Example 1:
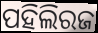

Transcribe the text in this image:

ପହିଲିରଜ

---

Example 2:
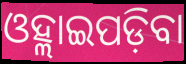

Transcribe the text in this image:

ଓହ୍ଲାଇପଡ଼ିବା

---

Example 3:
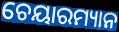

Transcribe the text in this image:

ଚେୟାରମ୍ୟାନ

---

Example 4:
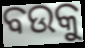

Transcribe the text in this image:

ବଉକୁ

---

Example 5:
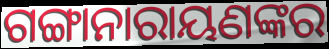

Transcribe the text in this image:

ଗଙ୍ଗାନାରାୟଣଙ୍କର